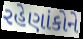
રહેણાંકોને